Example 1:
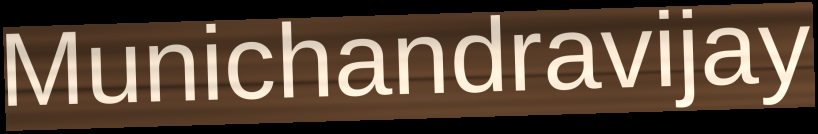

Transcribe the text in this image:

Munichandravijay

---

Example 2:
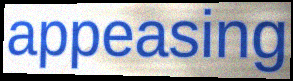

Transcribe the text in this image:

appeasing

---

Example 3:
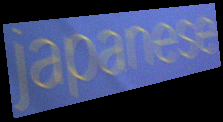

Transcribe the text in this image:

japanese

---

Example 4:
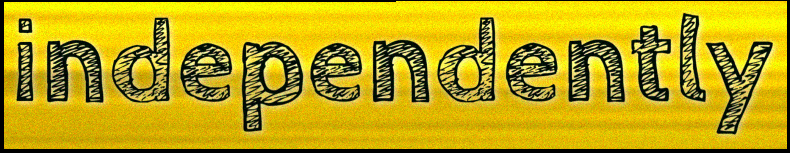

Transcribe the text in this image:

independently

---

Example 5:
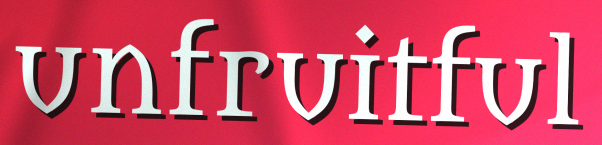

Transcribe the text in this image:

unfruitful